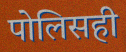
पोलिसही